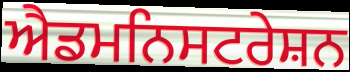
ਐਡਮਨਿਸਟਰੇਸ਼ਨ